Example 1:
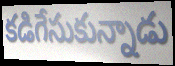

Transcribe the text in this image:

కడిగేసుకున్నాడు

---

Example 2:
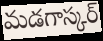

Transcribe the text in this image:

మడగాస్కర్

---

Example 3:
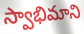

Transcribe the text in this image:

స్వాభిమాని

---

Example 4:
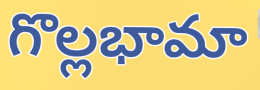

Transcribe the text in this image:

గొల్లభామా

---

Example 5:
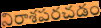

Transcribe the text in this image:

నిరాశపరచడం